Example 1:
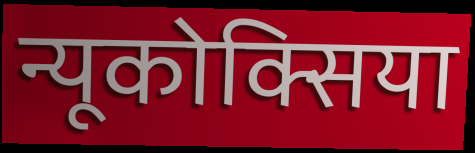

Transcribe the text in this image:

न्यूकोक्सिया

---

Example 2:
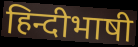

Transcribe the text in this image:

हिन्दीभाषी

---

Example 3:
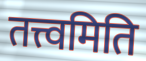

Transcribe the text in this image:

तत्त्वमिति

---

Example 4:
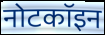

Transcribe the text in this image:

नोटकॉइन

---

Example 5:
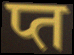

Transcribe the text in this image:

प्त